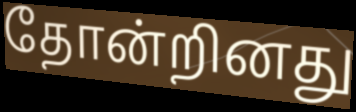
தோன்றினது